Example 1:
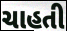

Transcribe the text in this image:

ચાહતી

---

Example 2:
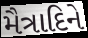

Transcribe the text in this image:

મૈત્રાદિને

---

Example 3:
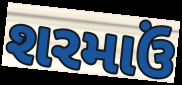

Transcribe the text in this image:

શરમાઉં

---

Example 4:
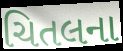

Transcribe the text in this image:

ચિતલના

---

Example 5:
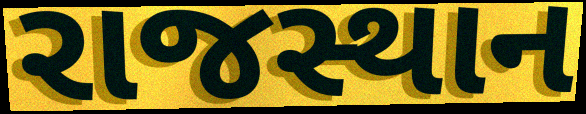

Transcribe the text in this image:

રાજસ્થાન